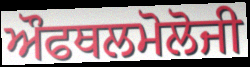
ਔਫਥਲਮੋਲੋਜੀ